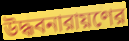
উদ্ধবনারায়ণের